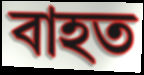
বাহত